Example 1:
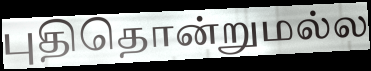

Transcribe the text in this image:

புதிதொன்றுமல்ல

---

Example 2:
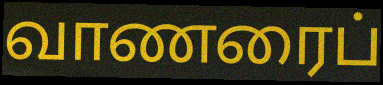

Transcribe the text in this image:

வாணரைப்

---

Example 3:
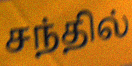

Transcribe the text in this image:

சந்தில்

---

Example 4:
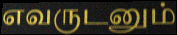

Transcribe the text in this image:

எவருடனும்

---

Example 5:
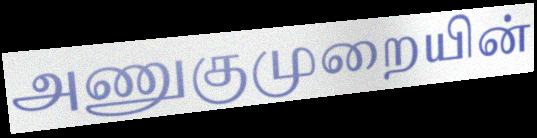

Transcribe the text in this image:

அணுகுமுறையின்